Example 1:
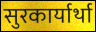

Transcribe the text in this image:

सुरकार्यार्था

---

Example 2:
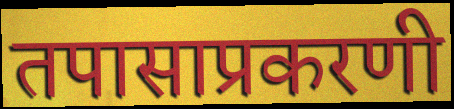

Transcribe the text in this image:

तपासाप्रकरणी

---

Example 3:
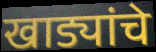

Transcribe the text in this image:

खाड्यांचे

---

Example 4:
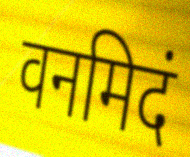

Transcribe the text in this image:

वनमिदं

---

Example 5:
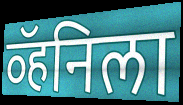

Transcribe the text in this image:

व्हॅनिला